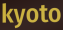
kyoto